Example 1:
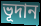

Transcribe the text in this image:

ভূদান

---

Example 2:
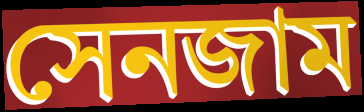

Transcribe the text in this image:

সেনজাম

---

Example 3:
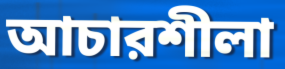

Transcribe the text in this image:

আচারশীলা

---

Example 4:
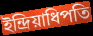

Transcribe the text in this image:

ইন্দ্রিয়াধিপতি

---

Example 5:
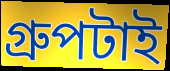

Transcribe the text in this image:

গ্রুপটাই